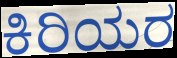
ಕಿರಿಯರ